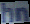
hn